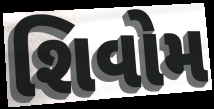
શિવોમ